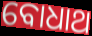
ବୋଧାଥ